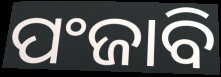
ପଂଜାବି